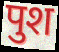
पुश